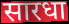
सारधा